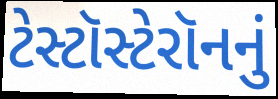
ટેસ્ટૉસ્ટેરૉનનું